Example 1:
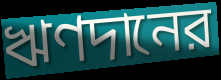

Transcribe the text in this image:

ঋণদানের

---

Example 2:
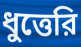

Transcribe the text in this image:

ধুত্তেরি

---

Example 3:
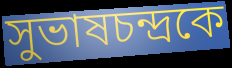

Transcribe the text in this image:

সুভাষচন্দ্রকে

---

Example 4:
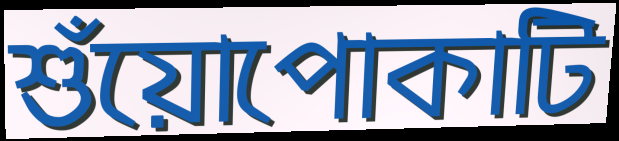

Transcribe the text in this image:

শুঁয়োপোকাটি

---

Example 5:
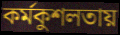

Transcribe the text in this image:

কর্মকুশলতায়